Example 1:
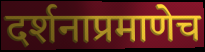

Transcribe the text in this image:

दर्शनाप्रमाणेच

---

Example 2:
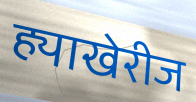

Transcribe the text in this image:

ह्याखेरीज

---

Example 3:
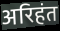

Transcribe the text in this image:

अरिहंत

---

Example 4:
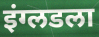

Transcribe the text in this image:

इंग्लडला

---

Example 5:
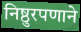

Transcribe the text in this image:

निष्ठुरपणाने